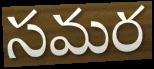
సమర